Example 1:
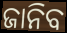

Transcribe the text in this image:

ଜାନିବ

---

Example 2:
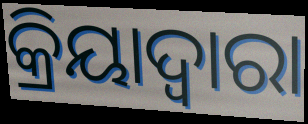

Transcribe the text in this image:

କ୍ରିୟାଦ୍ଵାରା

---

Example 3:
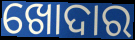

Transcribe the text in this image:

ଖୋଦାର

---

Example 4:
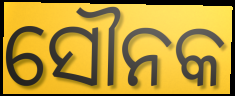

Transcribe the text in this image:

ସୌନକ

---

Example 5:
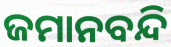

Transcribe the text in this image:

ଜମାନବନ୍ଦି